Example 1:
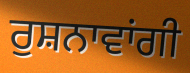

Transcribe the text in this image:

ਰੁਸ਼ਨਾਵਾਂਗੀ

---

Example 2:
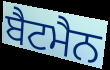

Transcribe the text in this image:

ਬੈਟਮੈਨ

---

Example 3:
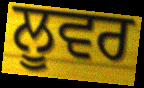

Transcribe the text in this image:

ਲੂਵਰ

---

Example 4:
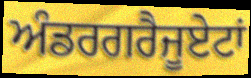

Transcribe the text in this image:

ਅੰਡਰਗਰੈਜੂਏਟਾਂ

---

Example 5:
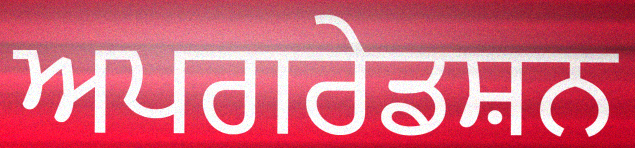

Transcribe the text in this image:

ਅਪਗਰੇਡਸ਼ਨ